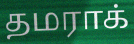
தமராக்